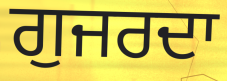
ਗੁਜਰਦਾ